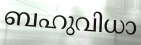
ബഹുവിധാ